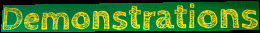
Demonstrations